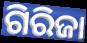
ଗିରିଜା